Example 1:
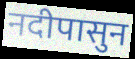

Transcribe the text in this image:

नदीपासुन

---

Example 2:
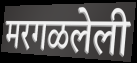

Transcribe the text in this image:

मरगळलेली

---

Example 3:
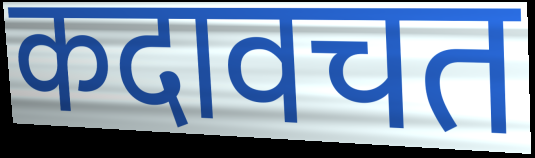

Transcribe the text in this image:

कदावचत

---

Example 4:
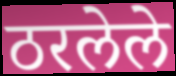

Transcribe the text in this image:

ठरलेले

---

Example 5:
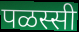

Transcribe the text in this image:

पळस्सी